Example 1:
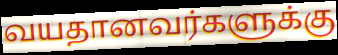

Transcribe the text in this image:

வயதானவர்களுக்கு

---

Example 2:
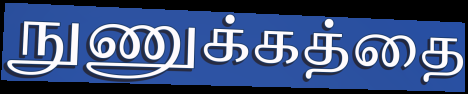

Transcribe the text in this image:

நுணுக்கத்தை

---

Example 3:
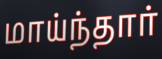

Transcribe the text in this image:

மாய்ந்தார்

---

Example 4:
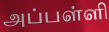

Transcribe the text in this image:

அப்பள்ளி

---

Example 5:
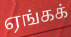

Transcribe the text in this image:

ஏங்கக்